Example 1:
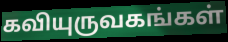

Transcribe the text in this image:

கவியுருவகங்கள்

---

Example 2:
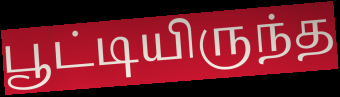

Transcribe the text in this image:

பூட்டியிருந்த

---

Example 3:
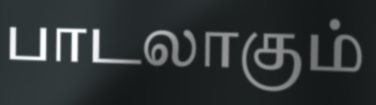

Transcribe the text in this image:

பாடலாகும்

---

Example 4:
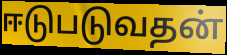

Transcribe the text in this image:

ஈடுபடுவதன்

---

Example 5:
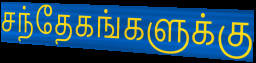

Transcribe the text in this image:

சந்தேகங்களுக்கு